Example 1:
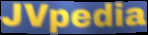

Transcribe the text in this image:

JVpedia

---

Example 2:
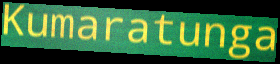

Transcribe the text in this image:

Kumaratunga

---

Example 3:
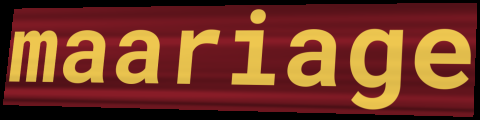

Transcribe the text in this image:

maariage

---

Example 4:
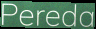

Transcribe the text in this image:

Pereda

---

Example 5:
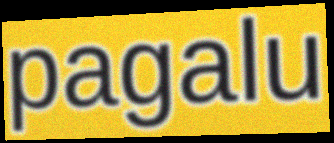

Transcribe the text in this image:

pagalu